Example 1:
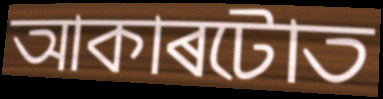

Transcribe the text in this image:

আকাৰটোত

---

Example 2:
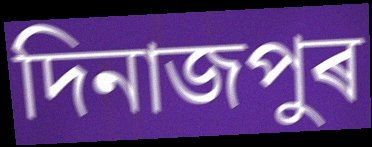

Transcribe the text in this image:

দিনাজপুৰ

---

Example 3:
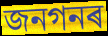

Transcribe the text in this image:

জনগনৰ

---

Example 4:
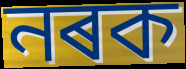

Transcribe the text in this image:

নৰক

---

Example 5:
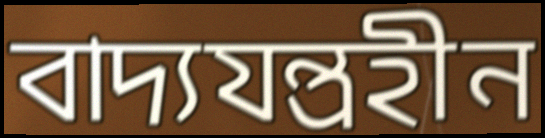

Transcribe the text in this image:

বাদ্যযন্ত্ৰহীন